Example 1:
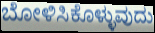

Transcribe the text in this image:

ಬೋಳಿಸಿಕೊಳ್ಳುವುದು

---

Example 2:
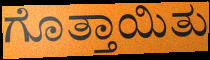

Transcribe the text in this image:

ಗೊತ್ತಾಯಿತು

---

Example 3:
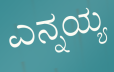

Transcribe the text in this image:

ಎನ್ನಯ್ಯ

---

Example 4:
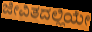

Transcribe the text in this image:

ಜೀವಿತದಲ್ಲಿಯೇ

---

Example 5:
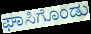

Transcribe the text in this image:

ಘಾಸಿಗೊಂಡು